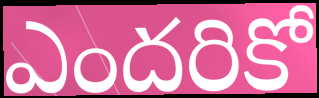
ఎందరికో